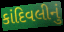
કાંદિવલીનું